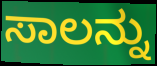
ಸಾಲನ್ನು